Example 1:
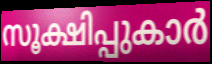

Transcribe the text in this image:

സൂക്ഷിപ്പുകാർ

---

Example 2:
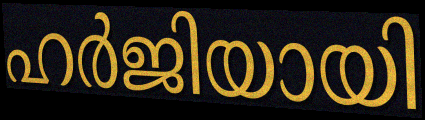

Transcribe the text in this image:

ഹർജിയായി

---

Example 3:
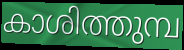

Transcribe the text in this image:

കാശിത്തുമ്പ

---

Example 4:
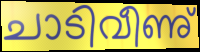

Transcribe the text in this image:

ചാടിവീണു്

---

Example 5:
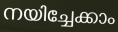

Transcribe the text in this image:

നയിച്ചേക്കാം